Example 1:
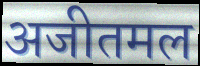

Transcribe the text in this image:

अजीतमल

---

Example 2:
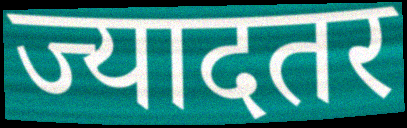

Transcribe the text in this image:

ज्यादतर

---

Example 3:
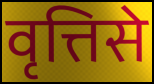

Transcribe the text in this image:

वृत्तिसे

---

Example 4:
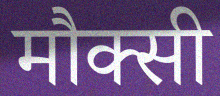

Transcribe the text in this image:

मौक्सी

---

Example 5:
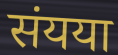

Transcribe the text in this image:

संयया